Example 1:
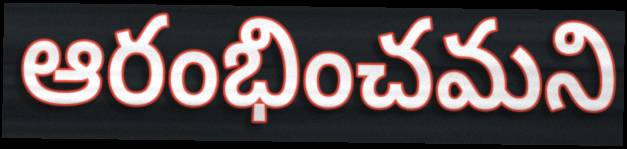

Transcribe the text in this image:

ఆరంభించమని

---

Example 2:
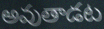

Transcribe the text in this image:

అవుతాడట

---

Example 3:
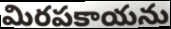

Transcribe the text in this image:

మిరపకాయను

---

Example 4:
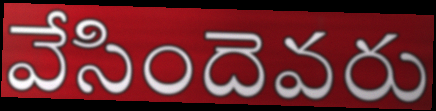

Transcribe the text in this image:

వేసిందెవరు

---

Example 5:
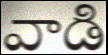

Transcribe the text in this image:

వాడి